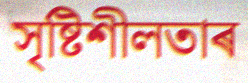
সৃষ্টিশীলতাৰ